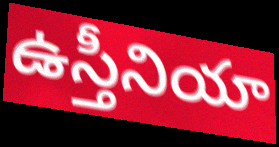
ఉస్తీనియా